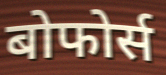
बोफोर्स